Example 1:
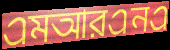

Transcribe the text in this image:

এমআরএনএ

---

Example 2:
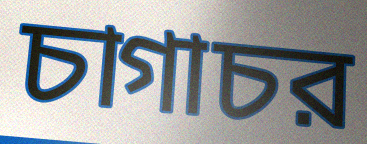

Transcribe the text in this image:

চাগাচর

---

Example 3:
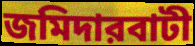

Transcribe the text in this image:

জমিদারবাটী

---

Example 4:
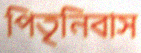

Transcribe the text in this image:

পিতৃনিবাস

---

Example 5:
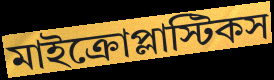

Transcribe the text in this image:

মাইক্রোপ্লাস্টিকস